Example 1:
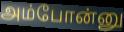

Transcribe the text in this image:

அம்போன்னு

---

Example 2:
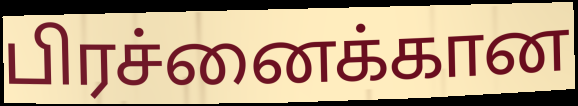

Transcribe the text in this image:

பிரச்னைக்கான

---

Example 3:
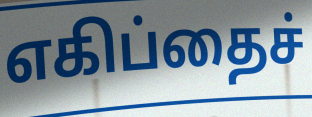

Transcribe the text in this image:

எகிப்தைச்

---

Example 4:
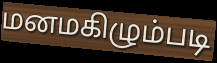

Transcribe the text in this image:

மனமகிழும்படி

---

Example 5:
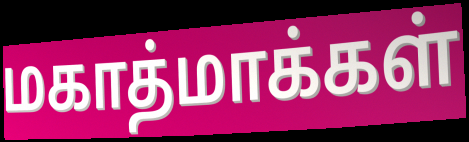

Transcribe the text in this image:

மகாத்மாக்கள்